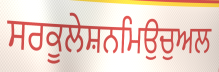
ਸਰਕੂਲੇਸ਼ਨਮਿਉਚੁਅਲ